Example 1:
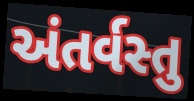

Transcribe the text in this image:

અંતર્વસ્તુ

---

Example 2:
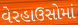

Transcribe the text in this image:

વેરહાઉસોમાં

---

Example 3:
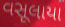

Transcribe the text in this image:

વસૂલાયા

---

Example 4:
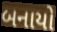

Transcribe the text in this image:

બનાયો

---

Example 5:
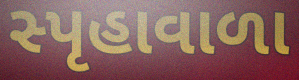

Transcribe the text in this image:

સ્પૃહાવાળા